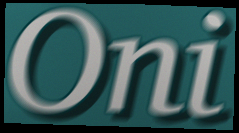
Oni